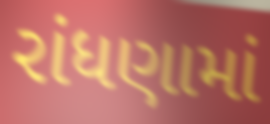
રાંધણામાં